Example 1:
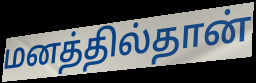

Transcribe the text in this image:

மனத்தில்தான்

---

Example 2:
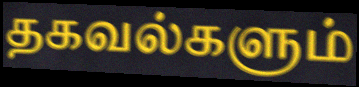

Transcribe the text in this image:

தகவல்களும்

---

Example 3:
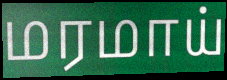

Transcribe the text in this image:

மரமாய்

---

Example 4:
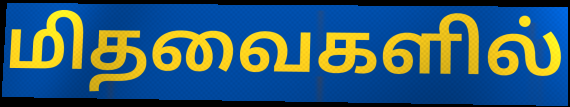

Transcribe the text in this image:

மிதவைகளில்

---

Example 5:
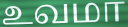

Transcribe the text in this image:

உவமா